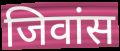
जिवांस